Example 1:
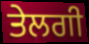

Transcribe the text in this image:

ਤੇਲਗੀ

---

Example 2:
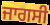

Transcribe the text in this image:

ਜਾਗਸੀ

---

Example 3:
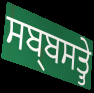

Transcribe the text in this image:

ਸਬ੍ਬਸਤ੍ਤੇ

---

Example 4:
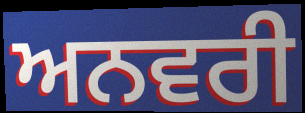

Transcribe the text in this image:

ਅਨਵਰੀ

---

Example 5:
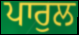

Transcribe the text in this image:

ਪਾਰੁਲ